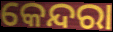
କେନ୍ଦରା